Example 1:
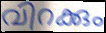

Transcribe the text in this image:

വിറക്കും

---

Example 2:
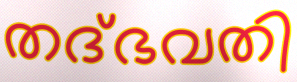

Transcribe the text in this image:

തദ്ഭവതി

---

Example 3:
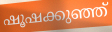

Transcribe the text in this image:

ഷൂഷക്കുഞ്ഞ്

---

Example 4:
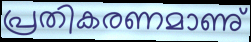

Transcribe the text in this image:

പ്രതികരണമാണു്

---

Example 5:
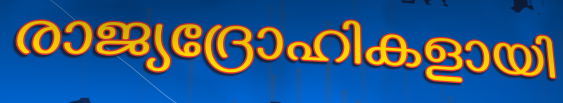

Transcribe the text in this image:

രാജ്യദ്രോഹികളായി